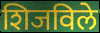
शिजविले